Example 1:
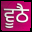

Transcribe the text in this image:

ਵੂਠੈ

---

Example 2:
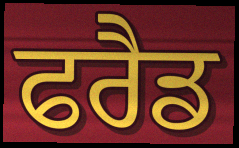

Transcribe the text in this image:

ਫਰੈਡ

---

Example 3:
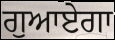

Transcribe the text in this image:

ਗੁਆਏਗਾ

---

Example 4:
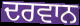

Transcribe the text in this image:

ਦਰਵਾਨ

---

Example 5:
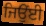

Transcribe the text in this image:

ਜਿਉਂਈ